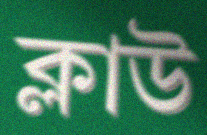
ক্লাউ